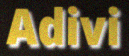
Adivi